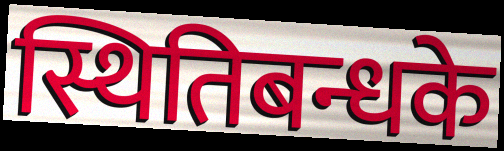
स्थितिबन्धके